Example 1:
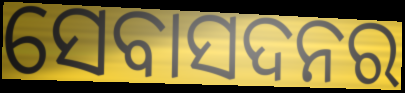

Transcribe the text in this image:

ସେବାସଦନର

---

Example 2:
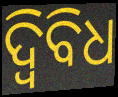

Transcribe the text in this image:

ଦ୍ଵିବିଧ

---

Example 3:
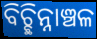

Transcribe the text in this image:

ବିଚ୍ଛିନ୍ନାଞ୍ଚଳ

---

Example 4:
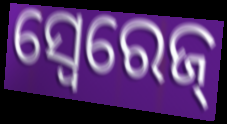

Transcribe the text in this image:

ସ୍ୱେରେଜ୍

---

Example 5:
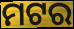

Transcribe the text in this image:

ମଟର